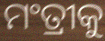
ମଂତ୍ରୀକୁ